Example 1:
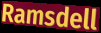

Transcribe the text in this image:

Ramsdell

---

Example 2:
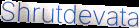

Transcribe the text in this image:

Shrutdevata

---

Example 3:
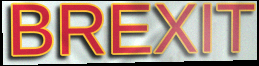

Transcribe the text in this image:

BREXIT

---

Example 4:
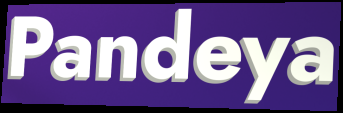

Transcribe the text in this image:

Pandeya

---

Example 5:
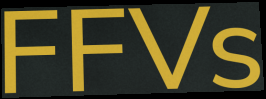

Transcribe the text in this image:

FFVs